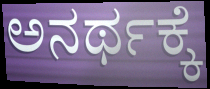
ಅನರ್ಥಕ್ಕೆ